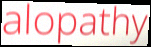
alopathy